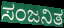
ಸಂಜನಿತ